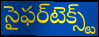
సైఫర్‌టెక్స్ట్